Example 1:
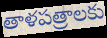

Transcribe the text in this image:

తాళపత్రాలకు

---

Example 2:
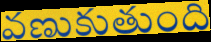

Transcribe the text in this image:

వణుకుతుంది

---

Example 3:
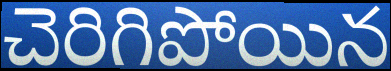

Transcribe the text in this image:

చెరిగిపోయిన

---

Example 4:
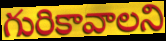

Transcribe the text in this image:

గురికావాలని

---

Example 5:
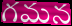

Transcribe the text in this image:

గమన